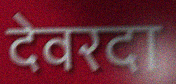
देवरदा